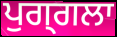
ਪੁਗ੍ਗਲਾ